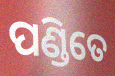
ପଣ୍ଡିତେ